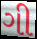
ગી